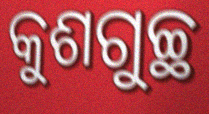
କୁଶଗୁଚ୍ଛ